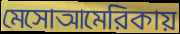
মেসোআমেরিকায়